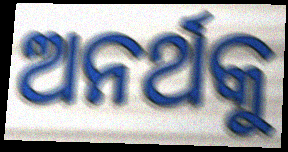
ଅନର୍ଥକୁ